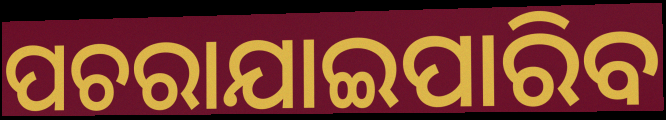
ପଚରାଯାଇପାରିବ